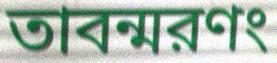
তাবন্মরণং